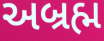
અબ્રહ્મ